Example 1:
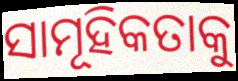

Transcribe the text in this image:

ସାମୂହିକତାକୁ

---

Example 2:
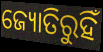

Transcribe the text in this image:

ଜ୍ୟୋତିରୁହିଁ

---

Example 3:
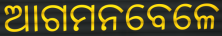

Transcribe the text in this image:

ଆଗମନବେଳେ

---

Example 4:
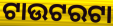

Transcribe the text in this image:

ଟାଉଟରଟା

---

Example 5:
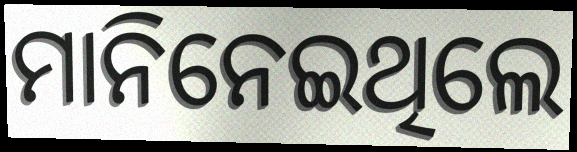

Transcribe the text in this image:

ମାନିନେଇଥିଲେ